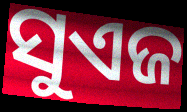
ସୁଏଜ